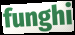
funghi